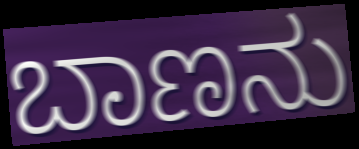
ಬಾಣನು